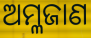
ଅମ୍ଳଜାଣ